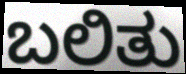
ಬಲಿತು